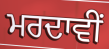
ਮਰਦਾਵੀਂ